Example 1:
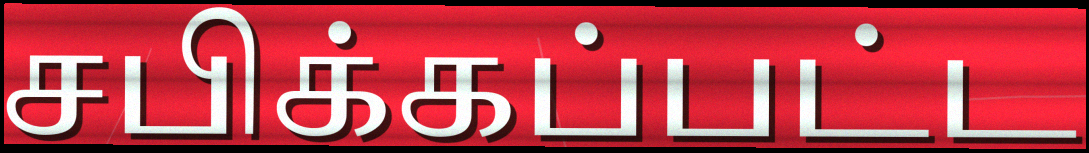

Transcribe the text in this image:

சபிக்கப்பட்ட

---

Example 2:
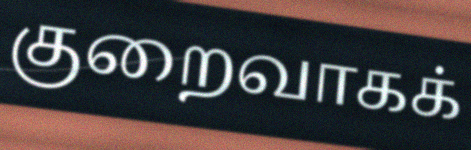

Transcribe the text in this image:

குறைவாகக்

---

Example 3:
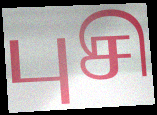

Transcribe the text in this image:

புசி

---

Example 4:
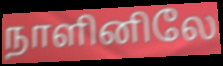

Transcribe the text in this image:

நாளினிலே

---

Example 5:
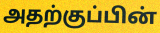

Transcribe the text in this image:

அதற்குப்பின்